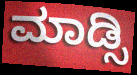
ಮಾಡ್ಸಿ